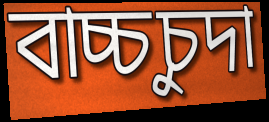
বাচ্চচুদা